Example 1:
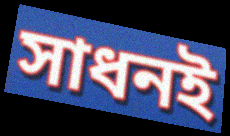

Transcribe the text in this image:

সাধনই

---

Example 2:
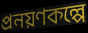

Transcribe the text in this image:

প্রনয়ণকল্পে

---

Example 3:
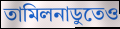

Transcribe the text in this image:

তামিলনাডুতেও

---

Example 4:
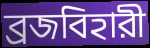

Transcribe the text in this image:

ব্রজবিহারী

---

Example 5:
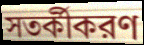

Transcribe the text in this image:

সতর্কীকরণ